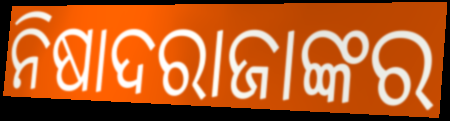
ନିଷାଦରାଜାଙ୍କର